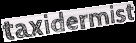
taxidermist